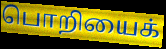
பொறியைக்